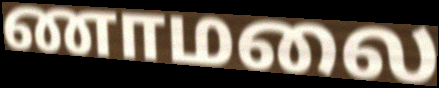
ணாமலை